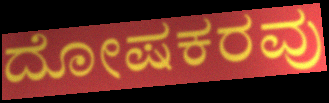
ದೋಷಕರವು